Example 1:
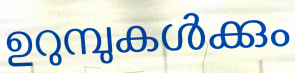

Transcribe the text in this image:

ഉറുമ്പുകൾക്കും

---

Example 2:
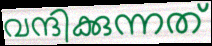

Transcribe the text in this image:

വന്ദിക്കുന്നത്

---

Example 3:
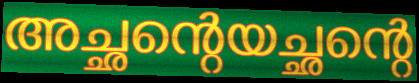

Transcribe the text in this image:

അച്ഛന്റെയച്ഛന്റെ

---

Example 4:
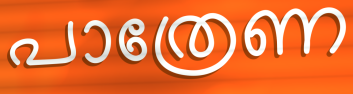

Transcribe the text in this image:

പാത്രേണ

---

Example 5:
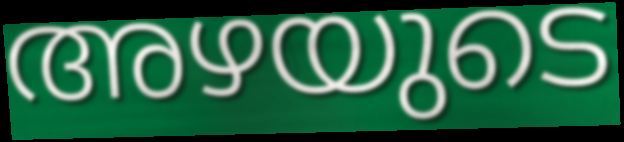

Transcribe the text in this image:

അഴയുടെ